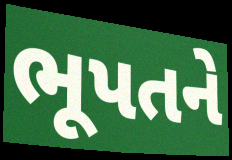
ભૂપતને